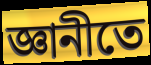
জ্ঞানীতে